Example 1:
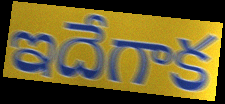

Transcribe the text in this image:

ఇదేగాక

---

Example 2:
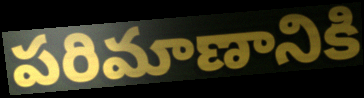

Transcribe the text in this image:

పరిమాణానికి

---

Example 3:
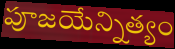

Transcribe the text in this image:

పూజయేన్నిత్యం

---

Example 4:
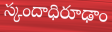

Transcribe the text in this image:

స్కందాధిరూఢాం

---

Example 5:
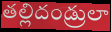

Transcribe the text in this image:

తల్లిదండ్రులా